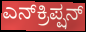
ಎನ್‌ಕ್ರಿಪ್ಷನ್